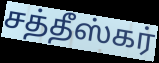
சத்தீஸ்கர்